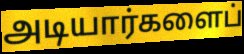
அடியார்களைப்